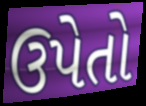
ઉપેતો